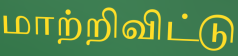
மாற்றிவிட்டு